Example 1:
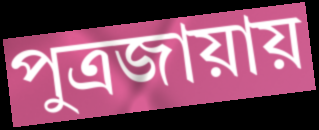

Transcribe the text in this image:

পুত্রজায়ায়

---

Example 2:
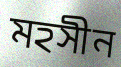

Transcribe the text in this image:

মহসীন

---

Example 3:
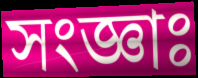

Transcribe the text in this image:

সংজ্ঞাঃ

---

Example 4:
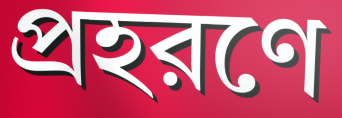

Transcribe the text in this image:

প্রহরণে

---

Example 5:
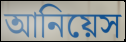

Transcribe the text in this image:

আনিয়েস